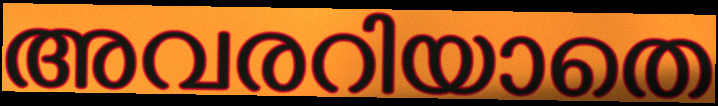
അവരറിയാതെ